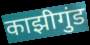
काझीगुंड